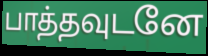
பாத்தவுடனே